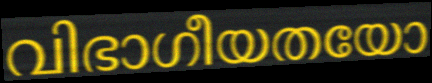
വിഭാഗീയതയോ